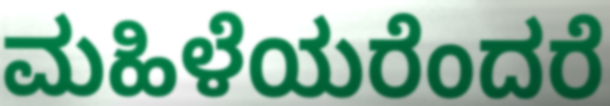
ಮಹಿಳೆಯರೆಂದರೆ